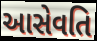
આસેવતિ